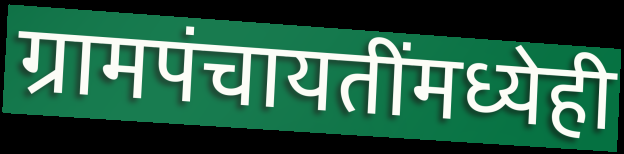
ग्रामपंचायतींमध्येही